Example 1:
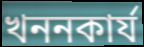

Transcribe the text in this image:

খননকার্য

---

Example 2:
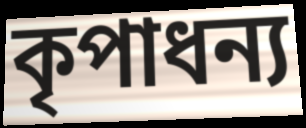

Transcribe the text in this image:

কৃপাধন্য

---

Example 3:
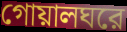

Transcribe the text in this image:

গোয়ালঘরে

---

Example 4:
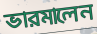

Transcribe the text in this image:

ভারমালেন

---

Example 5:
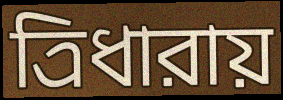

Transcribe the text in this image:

ত্রিধারায়